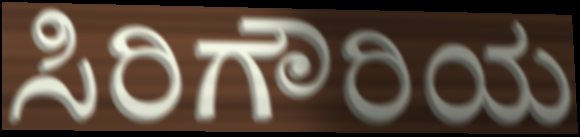
ಸಿರಿಗೌರಿಯ